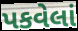
પકવેલાં